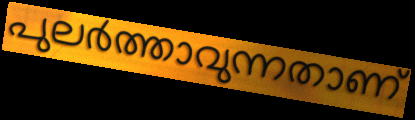
പുലർത്താവുന്നതാണ്